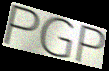
PGP